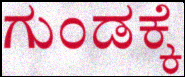
ಗುಂಡಕ್ಕೆ